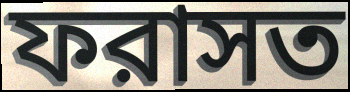
ফরাসত